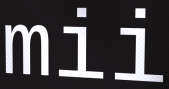
mii